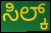
ಸಿಲ್ಕ್